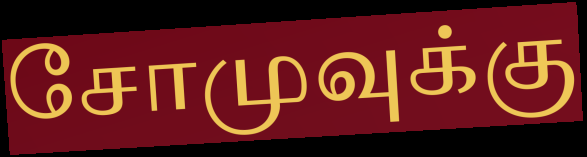
சோமுவுக்கு